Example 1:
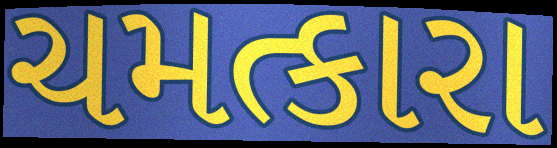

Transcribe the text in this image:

ચમત્કારા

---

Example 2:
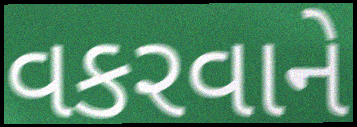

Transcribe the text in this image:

વકરવાને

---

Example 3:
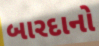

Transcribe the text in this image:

બારદાનો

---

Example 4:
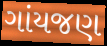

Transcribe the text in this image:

ગાંયજણ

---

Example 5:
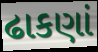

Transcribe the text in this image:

ઢાકણાં